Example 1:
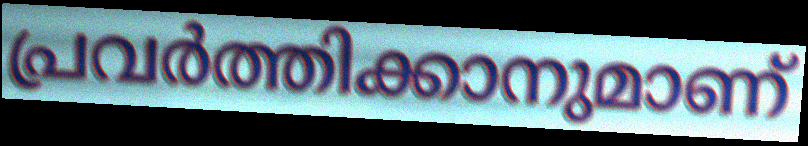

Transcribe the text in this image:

പ്രവർത്തിക്കാനുമാണ്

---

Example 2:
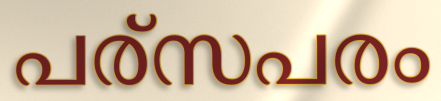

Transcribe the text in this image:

പര്സപരം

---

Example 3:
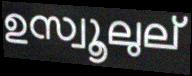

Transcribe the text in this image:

ഉസ്വൂലുല്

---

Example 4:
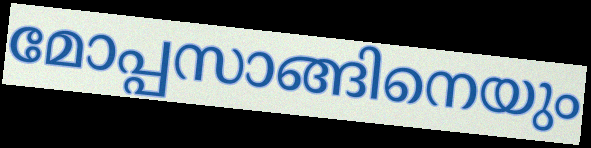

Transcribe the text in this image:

മോപ്പസാങ്ങിനെയും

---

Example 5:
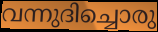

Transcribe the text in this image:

വന്നുദിച്ചൊരു